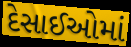
દેસાઈઓમાં